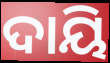
ଦାୟି